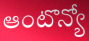
ఆంటొన్యో